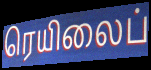
ரெயிலைப்